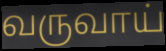
வருவாய்